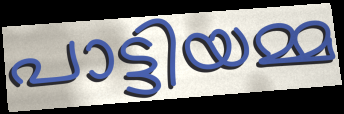
പാട്ടിയമ്മ